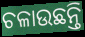
ଚଳାଉଛନ୍ତି